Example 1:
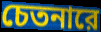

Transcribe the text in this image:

চেতনারে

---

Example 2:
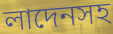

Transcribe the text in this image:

লাদেনসহ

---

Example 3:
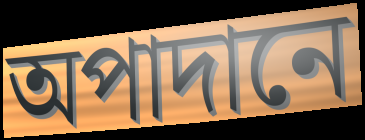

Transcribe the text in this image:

অপাদানে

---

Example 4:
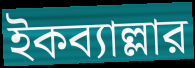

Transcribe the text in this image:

ইকব্যাল্লার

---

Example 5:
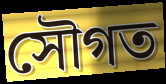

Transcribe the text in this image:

সৌগত